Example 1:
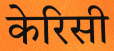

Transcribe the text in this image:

केरिसी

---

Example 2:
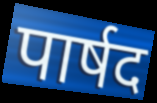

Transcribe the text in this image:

पार्षद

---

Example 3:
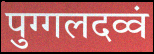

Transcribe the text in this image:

पुग्गलदव्वं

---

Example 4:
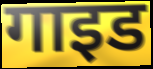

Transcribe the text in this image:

गाइड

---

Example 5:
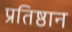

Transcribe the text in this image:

प्रतिष्ठान